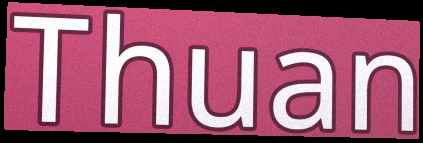
Thuan